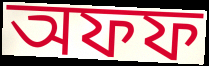
অফফ